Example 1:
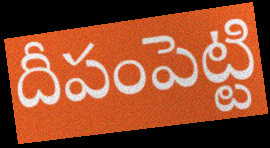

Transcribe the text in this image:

దీపంపెట్టి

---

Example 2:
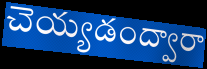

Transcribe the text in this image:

చెయ్యడంద్వారా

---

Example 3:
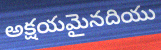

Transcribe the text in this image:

అక్షయమైనదియు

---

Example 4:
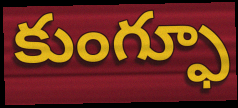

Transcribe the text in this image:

కుంగ్ఫూ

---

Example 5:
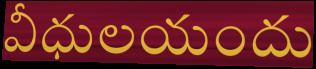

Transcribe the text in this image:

వీధులయందు